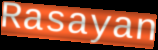
Rasayan